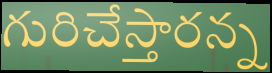
గురిచేస్తారన్న